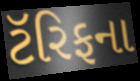
ટૅરિફના